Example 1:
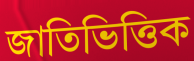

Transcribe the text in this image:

জাতিভিত্তিক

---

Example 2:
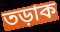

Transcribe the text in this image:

তড়াক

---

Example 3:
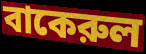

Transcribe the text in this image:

বাকেরুল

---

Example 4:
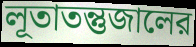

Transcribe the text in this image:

লূতাতন্তুজালের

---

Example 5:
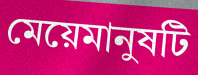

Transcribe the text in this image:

মেয়েমানুষটি